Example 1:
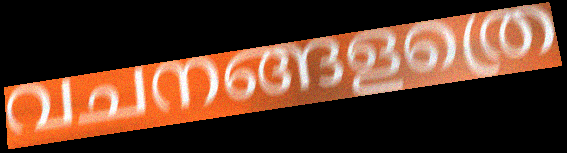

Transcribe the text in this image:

വചനങ്ങളത്രെ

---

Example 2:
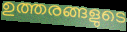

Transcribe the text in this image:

ഉത്തരങ്ങളുടെ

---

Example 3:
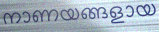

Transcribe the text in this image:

നാണയങ്ങളായ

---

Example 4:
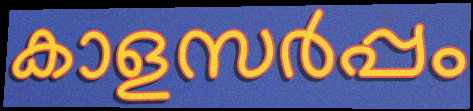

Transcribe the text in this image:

കാളസർപ്പം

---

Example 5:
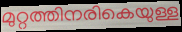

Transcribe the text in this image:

മുറ്റത്തിനരികെയുള്ള